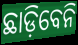
ଛାଡ଼ିବେନି